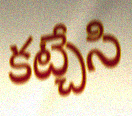
కట్చేసి